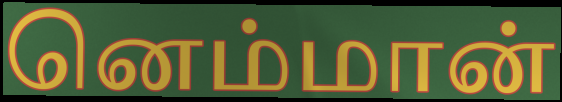
னெம்மான்